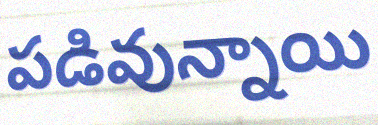
పడివున్నాయి